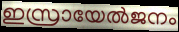
ഇസ്രായേൽജനം